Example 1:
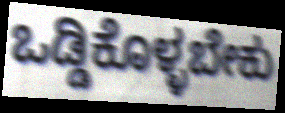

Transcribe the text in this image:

ಒಡ್ಡಿಕೊಳ್ಳಬೇಕು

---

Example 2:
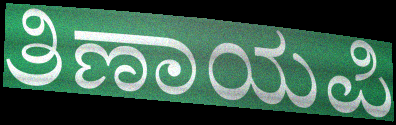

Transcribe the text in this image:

ತಿಣಾಯಪಿ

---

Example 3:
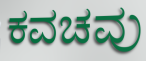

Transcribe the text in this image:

ಕವಚವು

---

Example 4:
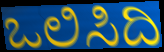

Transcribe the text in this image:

ಒಲಿಸಿದಿ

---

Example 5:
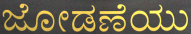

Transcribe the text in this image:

ಜೋಡಣೆಯು